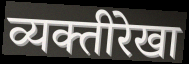
व्यक्तीरेखा